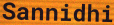
Sannidhi